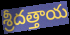
శ్రీదత్తాయ